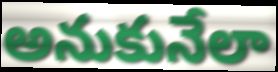
అనుకునేలా